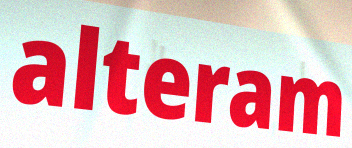
alteram